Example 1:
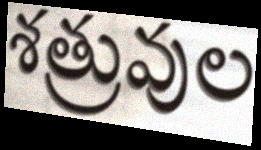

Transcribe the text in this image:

శత్రువుల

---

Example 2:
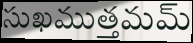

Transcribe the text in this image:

సుఖముత్తమమ్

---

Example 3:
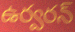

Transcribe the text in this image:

ఉర్వరన్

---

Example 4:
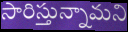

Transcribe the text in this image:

సారిస్తున్నామని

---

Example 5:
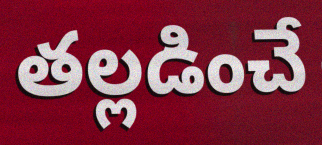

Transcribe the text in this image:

తల్లడించే